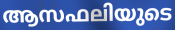
ആസഫലിയുടെ